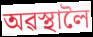
অৱস্থালৈ